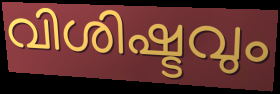
വിശിഷ്ടവും